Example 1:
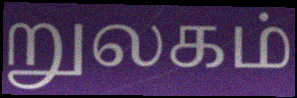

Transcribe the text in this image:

றுலகம்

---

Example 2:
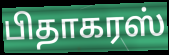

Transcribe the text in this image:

பிதாகரஸ்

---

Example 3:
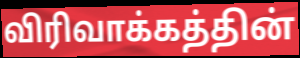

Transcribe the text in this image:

விரிவாக்கத்தின்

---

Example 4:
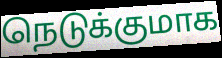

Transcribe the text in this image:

நெடுக்குமாக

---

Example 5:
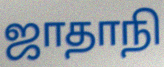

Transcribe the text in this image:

ஜாதாநி